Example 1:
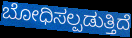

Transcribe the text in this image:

ಬೋಧಿಸಲ್ಪಡುತ್ತಿದೆ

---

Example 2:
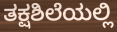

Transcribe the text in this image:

ತಕ್ಷಶಿಲೆಯಲ್ಲಿ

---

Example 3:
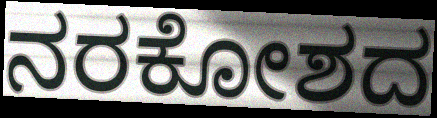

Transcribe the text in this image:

ನರಕೋಶದ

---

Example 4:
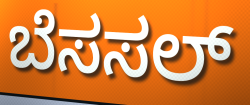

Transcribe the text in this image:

ಬೆಸಸಲ್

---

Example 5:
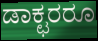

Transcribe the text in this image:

ಡಾಕ್ಟರರೂ